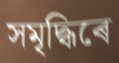
সমৃদ্ধিৰে